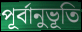
পূর্বানুভূতি